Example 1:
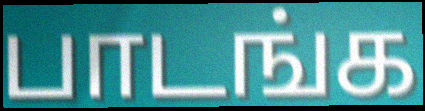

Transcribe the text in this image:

பாடங்க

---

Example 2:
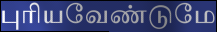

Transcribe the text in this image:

புரியவேண்டுமே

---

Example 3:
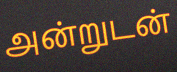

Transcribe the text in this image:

அன்றுடன்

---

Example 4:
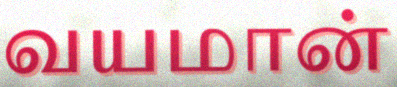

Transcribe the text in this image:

வயமான்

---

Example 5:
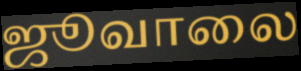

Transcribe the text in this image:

ஜூவாலை